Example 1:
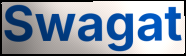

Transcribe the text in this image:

Swagat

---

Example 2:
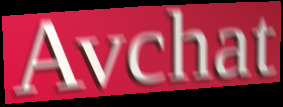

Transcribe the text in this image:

Avchat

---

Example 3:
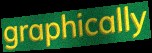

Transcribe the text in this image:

graphically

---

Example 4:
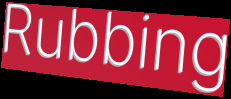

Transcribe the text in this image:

Rubbing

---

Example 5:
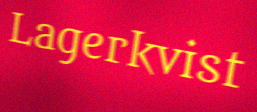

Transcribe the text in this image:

Lagerkvist